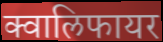
क्वालिफायर